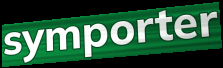
symporter